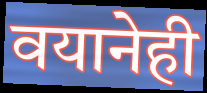
वयानेही